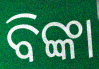
ବିଙ୍କା